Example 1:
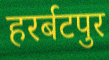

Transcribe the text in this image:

हरर्बटपुर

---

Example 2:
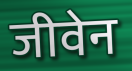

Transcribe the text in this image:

जीवेन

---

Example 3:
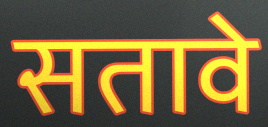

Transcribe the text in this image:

सतावे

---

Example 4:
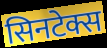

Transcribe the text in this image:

सिनटेक्स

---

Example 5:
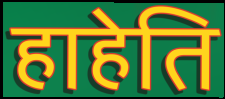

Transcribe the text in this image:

हाहेति